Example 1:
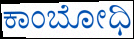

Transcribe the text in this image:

ಕಾಂಬೋಧಿ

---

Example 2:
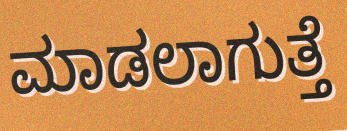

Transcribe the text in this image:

ಮಾಡಲಾಗುತ್ತೆ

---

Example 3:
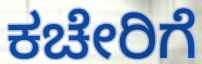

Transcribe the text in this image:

ಕಚೇರಿಗೆ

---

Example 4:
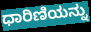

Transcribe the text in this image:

ಧಾರಿಣಿಯನ್ನು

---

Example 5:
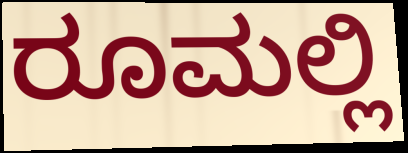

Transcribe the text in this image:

ರೂಮಲ್ಲಿ